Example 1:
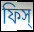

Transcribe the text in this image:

ফিস্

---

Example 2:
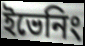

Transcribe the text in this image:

ইভেনিং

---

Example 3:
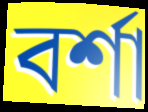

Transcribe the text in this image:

বর্শা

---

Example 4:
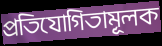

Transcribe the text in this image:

প্রতিযোগিতামূলক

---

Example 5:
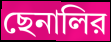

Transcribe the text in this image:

ছেনালির